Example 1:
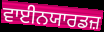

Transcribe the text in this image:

ਵਾਈਨਯਾਰਡਜ਼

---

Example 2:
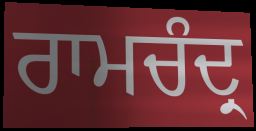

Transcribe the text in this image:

ਰਾਮਚੰਦ੍ਰ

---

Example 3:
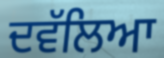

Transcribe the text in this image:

ਦਵੱਲਿਆ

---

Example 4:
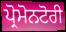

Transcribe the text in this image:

ਪ੍ਰੋਮੋਨਟੋਰੀ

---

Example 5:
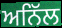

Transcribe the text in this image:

ਅਨਿੱਲ